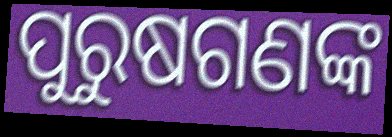
ପୁରୁଷଗଣଙ୍କ